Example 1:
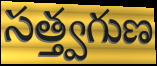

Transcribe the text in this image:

సత్త్వగుణ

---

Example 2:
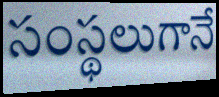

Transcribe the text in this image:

సంస్థలుగానే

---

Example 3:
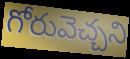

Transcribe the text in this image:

గోరువెచ్చని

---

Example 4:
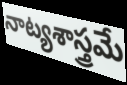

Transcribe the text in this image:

నాట్యశాస్త్రమే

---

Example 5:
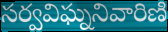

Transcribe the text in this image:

సర్వవిఘ్ననివారిణి